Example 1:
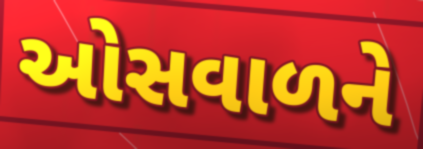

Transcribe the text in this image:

ઓસવાળને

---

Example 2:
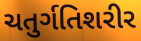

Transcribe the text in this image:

ચતુર્ગતિશરીર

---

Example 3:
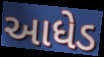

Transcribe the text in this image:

આધેડ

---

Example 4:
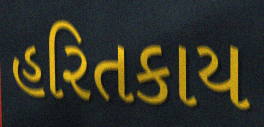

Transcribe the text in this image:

હરિતકાય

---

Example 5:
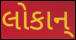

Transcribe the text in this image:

લોકાન્